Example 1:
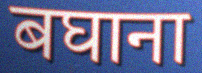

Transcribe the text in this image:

बघाना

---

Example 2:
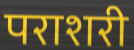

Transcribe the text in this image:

पराशरी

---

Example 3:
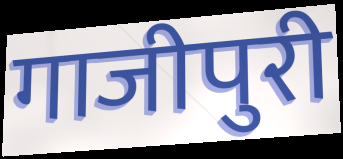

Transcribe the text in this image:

गाजीपुरी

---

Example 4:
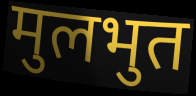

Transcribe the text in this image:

मुलभुत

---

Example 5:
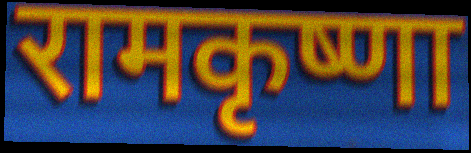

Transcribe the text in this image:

रामकृष्णा